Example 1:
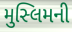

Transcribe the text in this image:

મુસ્લિમની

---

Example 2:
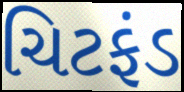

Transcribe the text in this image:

ચિટફંડ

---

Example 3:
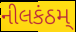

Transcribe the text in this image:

નીલકંઠમ્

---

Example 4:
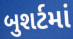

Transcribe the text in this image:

બુશર્ટમાં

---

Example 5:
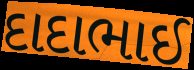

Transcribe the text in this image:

દાદાભાઈ